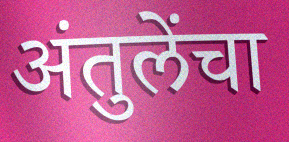
अंतुलेंचा